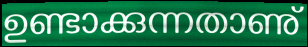
ഉണ്ടാക്കുന്നതാണു്